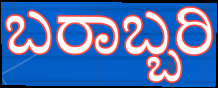
ಬರಾಬ್ಬರಿ